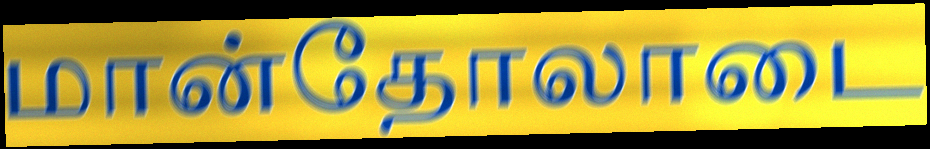
மான்தோலாடை